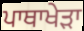
ਪਾਥਾਖੇੜਾ